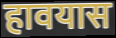
हावयास